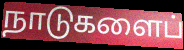
நாடுகளைப்